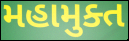
મહામુક્ત